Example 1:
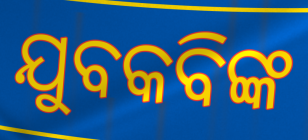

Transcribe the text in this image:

ଯୁବକବିଙ୍କ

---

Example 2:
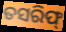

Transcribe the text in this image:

ତସରିଫ୍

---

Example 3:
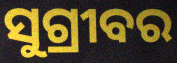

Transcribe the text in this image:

ସୁଗ୍ରୀବର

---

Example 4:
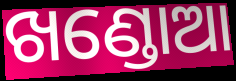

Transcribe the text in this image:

ଖଣ୍ଡୋଆ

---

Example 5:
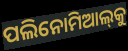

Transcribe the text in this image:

ପଲିନୋମିଆଲ୍‌କୁ